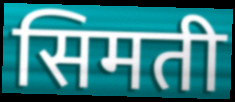
सिमती